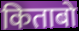
किताबो